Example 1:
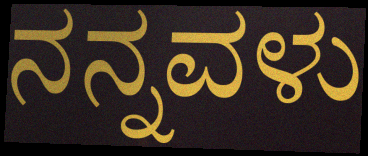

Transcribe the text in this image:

ನನ್ನವಳು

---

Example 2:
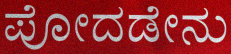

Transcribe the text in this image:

ಪೋದಡೇನು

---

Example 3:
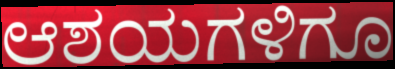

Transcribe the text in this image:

ಆಶಯಗಳಿಗೂ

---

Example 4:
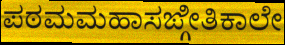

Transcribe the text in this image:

ಪಠಮಮಹಾಸಙ್ಗೀತಿಕಾಲೇ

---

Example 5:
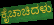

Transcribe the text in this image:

ಕೈಚಾಚಿದಳು